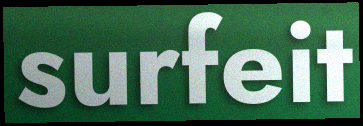
surfeit